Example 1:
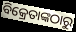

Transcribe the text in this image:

ବିକ୍ରେତାଙ୍କଠାରୁ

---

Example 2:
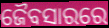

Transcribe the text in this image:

ଜୈବସାରରେ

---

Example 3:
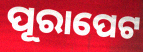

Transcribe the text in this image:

ପୂରାପେଟ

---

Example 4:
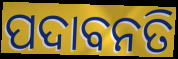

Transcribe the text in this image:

ପଦାବନତି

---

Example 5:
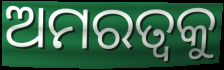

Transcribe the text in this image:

ଅମରତ୍ୱକୁ